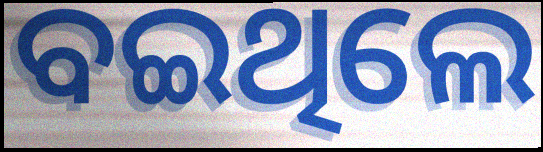
ବଇଥିଲେ